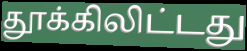
தூக்கிலிட்டது